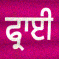
ਫ੍ਰਾਈ